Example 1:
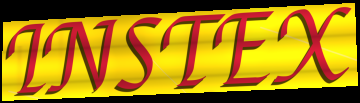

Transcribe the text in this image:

INSTEX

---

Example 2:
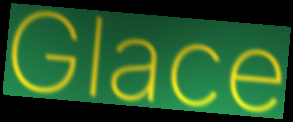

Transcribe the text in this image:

Glace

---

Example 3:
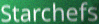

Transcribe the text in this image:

Starchefs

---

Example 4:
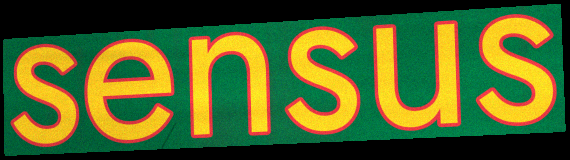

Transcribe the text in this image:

sensus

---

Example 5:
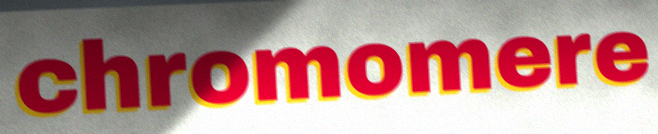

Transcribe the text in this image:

chromomere